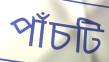
পাঁচটি